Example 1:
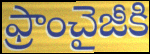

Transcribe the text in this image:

ఫ్రాంచైజీకి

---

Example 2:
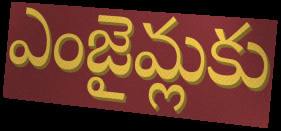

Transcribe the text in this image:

ఎంజైమ్లకు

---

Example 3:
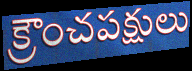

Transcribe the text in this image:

క్రౌంచపక్షులు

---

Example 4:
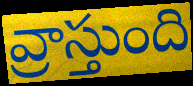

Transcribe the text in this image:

వ్రాస్తుంది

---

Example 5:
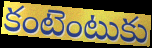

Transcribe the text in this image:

కంటెంటుకు